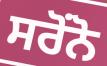
ਸਰੋਂਨੋ